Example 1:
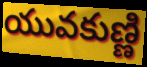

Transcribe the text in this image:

యువకుణ్ణి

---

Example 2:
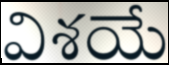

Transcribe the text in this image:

విశయే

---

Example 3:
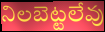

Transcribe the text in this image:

నిలబెట్టలేవు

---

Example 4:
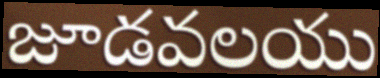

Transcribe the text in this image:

జూడవలయు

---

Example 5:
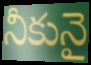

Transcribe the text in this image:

నీకునై